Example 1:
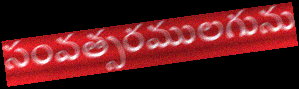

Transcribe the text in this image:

సంవత్సరములగును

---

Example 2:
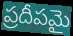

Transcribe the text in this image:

ప్రదీపమై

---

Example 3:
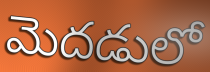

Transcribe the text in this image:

మెదడులో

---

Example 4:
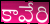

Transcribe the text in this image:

కావేరి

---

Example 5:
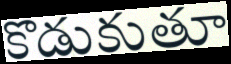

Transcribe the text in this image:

కొడుకుతూ